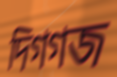
দিগগজ